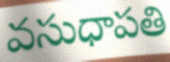
వసుధాపతి